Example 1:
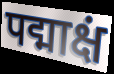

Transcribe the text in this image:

पद्माक्षं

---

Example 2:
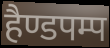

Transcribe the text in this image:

हैण्डपम्प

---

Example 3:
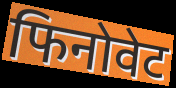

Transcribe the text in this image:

फिनोवेट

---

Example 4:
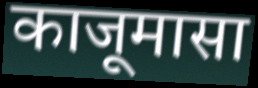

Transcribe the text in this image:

काजूमासा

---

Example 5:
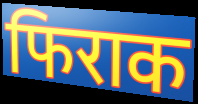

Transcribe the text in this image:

फिराक